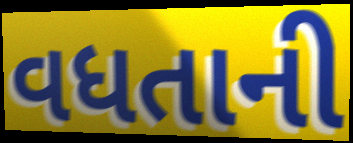
વધતાની